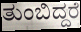
ತುಂಬಿದ್ದರೆ